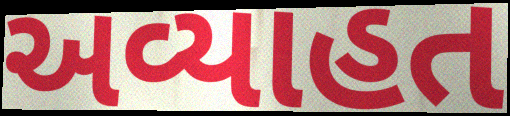
અવ્યાહત